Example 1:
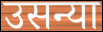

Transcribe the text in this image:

उसन्या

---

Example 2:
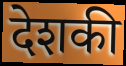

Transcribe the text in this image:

देशकी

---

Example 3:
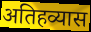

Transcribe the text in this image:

अतिहव्यास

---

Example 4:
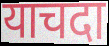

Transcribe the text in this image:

याचदा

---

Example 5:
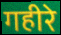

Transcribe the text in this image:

गहीरे